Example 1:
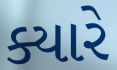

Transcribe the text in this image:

ક્‍યારે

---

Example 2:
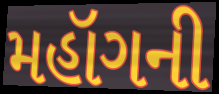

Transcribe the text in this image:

મહૉગની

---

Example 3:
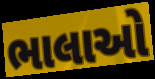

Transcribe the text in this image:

ભાલાઓ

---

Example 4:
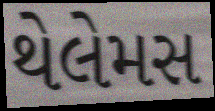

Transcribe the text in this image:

થેલેમસ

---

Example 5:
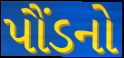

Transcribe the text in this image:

પૌંડનો